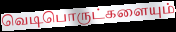
வெடிபொருட்களையும்